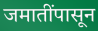
जमातींपासून